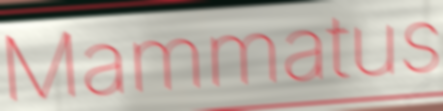
Mammatus